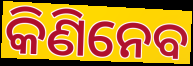
କିଣିନେବ